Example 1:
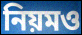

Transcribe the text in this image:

নিয়মও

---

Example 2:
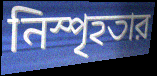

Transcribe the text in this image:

নিস্পৃহতার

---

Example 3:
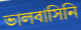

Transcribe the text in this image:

ভালবাসিনি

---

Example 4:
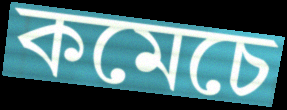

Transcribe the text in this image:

কমেচে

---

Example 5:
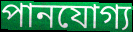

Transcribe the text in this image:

পানযোগ্য